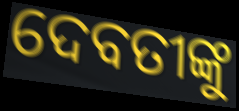
ଦେବତୀଙ୍କୁ